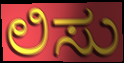
ಲಿಸು